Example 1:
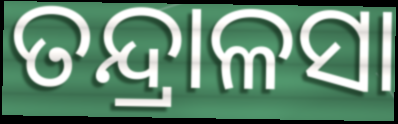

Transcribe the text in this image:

ତନ୍ଦ୍ରାଳସା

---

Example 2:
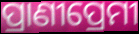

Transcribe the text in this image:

ପ୍ରାଣୀପ୍ରେମୀ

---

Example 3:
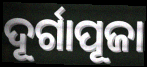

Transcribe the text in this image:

ଦୂର୍ଗାପୂଜା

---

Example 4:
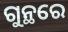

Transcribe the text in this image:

ଗୁନ୍ଥରେ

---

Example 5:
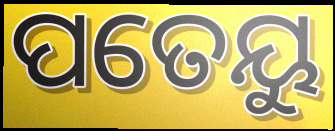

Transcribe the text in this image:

ପତେୟୁ